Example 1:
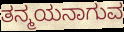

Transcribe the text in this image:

ತನ್ಮಯನಾಗುವ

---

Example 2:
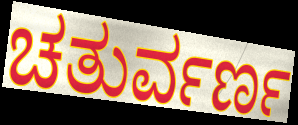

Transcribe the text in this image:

ಚತುರ್ವರ್ಣ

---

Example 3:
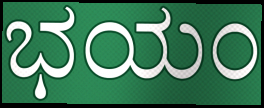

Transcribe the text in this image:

ಭಯಂ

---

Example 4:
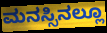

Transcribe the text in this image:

ಮನಸ್ಸಿನಲ್ಲೂ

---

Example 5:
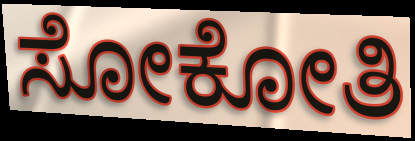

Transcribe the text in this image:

ಸೋಕೋತಿ